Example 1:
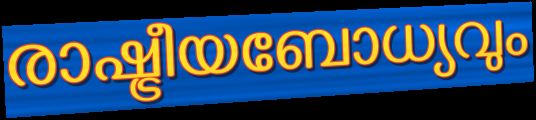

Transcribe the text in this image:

രാഷ്ട്രീയബോധ്യവും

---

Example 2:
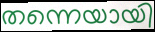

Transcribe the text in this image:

തന്നെയായി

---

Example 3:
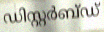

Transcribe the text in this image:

ഡിസ്റ്റർബ്ഡ്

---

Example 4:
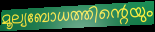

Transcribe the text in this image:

മൂല്യബോധത്തിന്റെയും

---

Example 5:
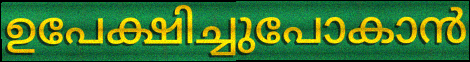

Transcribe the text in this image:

ഉപേക്ഷിച്ചുപോകാൻ